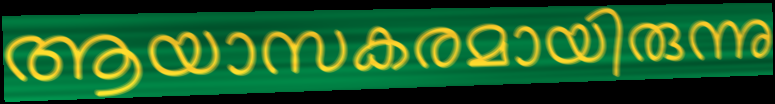
ആയാസകരമായിരുന്നു